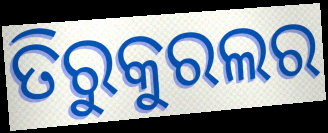
ତିରୁକୁରଲର